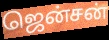
ஜென்சன்